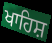
ਖਾਹਿਸ਼